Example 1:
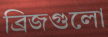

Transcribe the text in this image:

ব্রিজগুলো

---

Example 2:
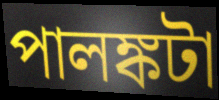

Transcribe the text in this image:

পালঙ্কটা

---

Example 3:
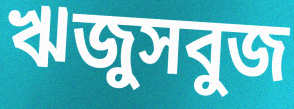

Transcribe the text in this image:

ঋজুসবুজ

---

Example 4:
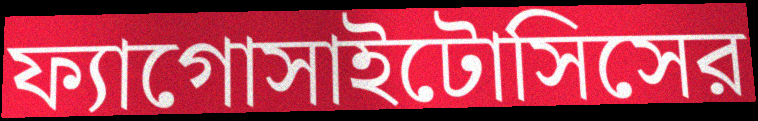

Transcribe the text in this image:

ফ্যাগোসাইটোসিসের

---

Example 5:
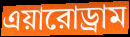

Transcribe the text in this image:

এয়ারোড্রাম